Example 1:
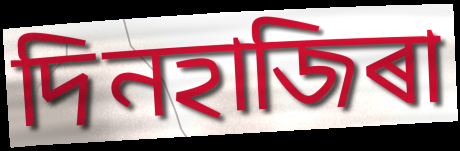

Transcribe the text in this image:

দিনহাজিৰা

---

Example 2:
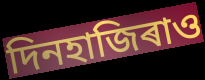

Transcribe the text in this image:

দিনহাজিৰাও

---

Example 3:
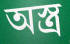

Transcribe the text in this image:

অস্ত্ৰ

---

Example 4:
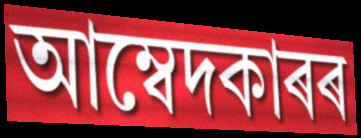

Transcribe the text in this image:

আম্বেদকাৰৰ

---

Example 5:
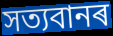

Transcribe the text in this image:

সত্যবানৰ